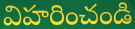
విహరించండి